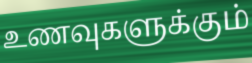
உணவுகளுக்கும்